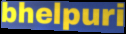
bhelpuri